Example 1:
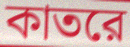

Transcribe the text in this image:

কাতরে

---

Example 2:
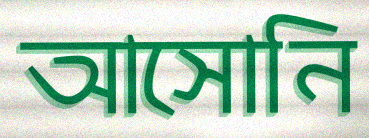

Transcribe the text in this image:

আসোনি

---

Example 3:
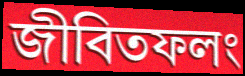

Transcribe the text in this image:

জীবিতফলং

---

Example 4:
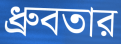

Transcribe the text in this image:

ধ্রুবতার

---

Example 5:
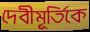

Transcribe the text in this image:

দেবীমূর্তিকে